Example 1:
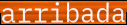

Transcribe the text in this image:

arribada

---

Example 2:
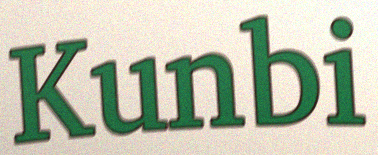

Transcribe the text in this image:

Kunbi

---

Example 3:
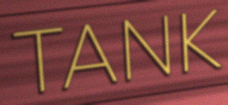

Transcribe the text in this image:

TANK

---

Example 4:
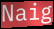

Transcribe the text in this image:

Naig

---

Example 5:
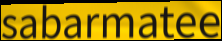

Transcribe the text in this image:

sabarmatee